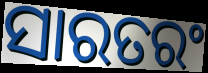
ସାରତରଂ